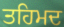
ਤਹਿਮਦ